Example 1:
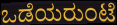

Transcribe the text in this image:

ಒಡೆಯರುಂಟೆ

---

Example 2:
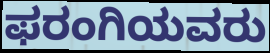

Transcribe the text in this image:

ಫರಂಗಿಯವರು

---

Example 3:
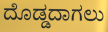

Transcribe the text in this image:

ದೊಡ್ಡದಾಗಲು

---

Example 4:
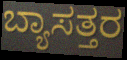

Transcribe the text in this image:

ಬ್ಯಾಸತ್ತರ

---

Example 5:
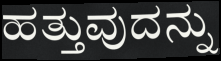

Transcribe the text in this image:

ಹತ್ತುವುದನ್ನು